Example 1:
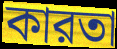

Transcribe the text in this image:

কারতা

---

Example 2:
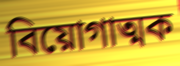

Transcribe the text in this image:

বিয়োগাত্মক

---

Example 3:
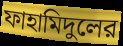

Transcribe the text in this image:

ফাহামিদুলের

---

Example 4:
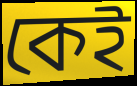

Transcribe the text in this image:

কেই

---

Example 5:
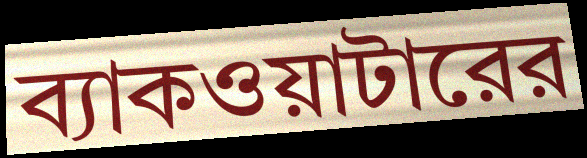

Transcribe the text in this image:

ব্যাকওয়াটারের